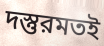
দস্তুরমতই